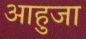
आहुजा